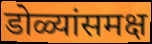
डोळ्यांसमक्ष